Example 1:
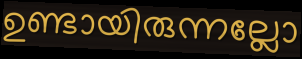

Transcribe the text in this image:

ഉണ്ടായിരുന്നല്ലോ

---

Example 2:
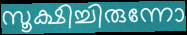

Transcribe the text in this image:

സൂക്ഷിച്ചിരുന്നോ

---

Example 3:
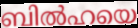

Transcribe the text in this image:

ബിൽഹയെ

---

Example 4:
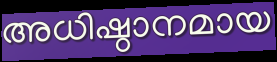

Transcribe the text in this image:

അധിഷ്ഠാനമായ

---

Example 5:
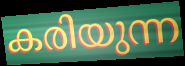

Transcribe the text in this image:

കരിയുന്ന